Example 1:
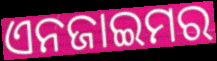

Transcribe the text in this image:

ଏନଜାଇମର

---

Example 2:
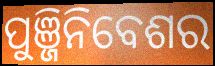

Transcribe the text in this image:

ପୁଞ୍ଜିନିବେଶର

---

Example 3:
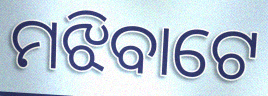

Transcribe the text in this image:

ମଝିବାଟେ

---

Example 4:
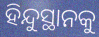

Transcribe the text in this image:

ହିନ୍ଦୁସ୍ଥାନକୁ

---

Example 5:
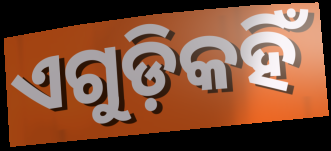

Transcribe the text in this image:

ଏଗୁଡ଼ିକହିଁ